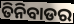
ତିନିବାଡର